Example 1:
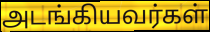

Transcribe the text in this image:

அடங்கியவர்கள்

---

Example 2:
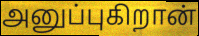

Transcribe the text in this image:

அனுப்புகிறான்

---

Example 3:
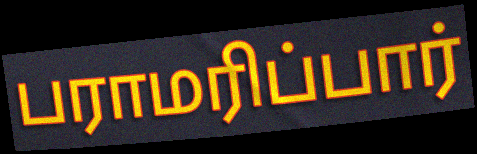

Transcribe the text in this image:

பராமரிப்பார்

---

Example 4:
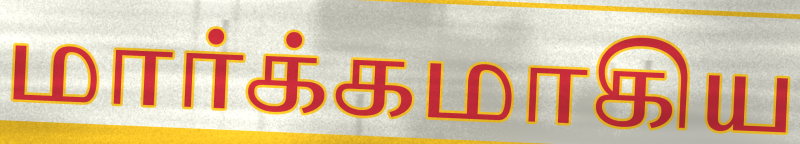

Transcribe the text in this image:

மார்க்கமாகிய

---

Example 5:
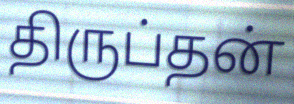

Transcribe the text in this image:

திருப்தன்